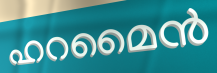
ഹറമൈൻ